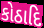
કોઠાદિ